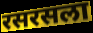
रसरसला